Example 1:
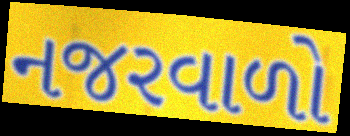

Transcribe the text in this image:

નજરવાળો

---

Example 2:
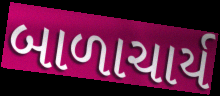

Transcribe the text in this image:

બાળાચાર્ય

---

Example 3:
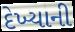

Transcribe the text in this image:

દેખ્યાની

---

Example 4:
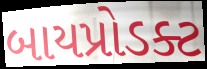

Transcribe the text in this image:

બાયપ્રોડક્ટ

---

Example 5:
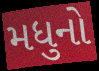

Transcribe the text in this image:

મધુનો